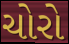
ચોરો